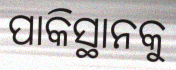
ପାକିସ୍ଥାନକୁ